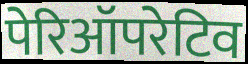
पेरिऑपरेटिव